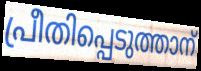
പ്രീതിപ്പെടുത്താന്